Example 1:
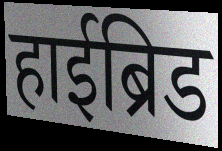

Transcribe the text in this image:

हाईब्रिड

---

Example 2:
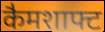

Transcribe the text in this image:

कैमशाफ्ट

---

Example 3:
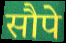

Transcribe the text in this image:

सौपे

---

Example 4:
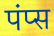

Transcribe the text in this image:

पंप्स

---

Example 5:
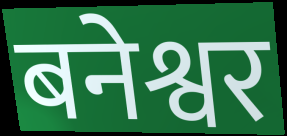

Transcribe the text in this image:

बनेश्वर